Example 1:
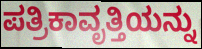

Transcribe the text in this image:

ಪತ್ರಿಕಾವೃತ್ತಿಯನ್ನು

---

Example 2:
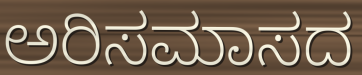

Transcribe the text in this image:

ಅರಿಸಮಾಸದ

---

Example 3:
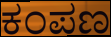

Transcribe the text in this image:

ಕಂಪಣ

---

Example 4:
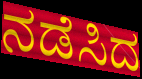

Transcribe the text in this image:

ನಡೆಸಿದ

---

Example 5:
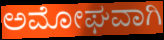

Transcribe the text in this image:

ಅಮೋಘವಾಗಿ